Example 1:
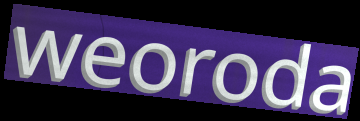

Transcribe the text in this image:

weoroda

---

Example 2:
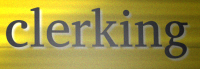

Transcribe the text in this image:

clerking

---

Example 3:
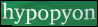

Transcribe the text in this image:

hypopyon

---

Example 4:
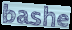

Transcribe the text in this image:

bashe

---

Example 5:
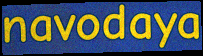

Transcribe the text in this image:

navodaya